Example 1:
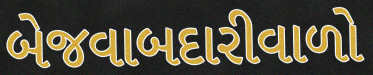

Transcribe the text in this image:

બેજવાબદારીવાળો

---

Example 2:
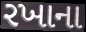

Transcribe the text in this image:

રખાના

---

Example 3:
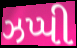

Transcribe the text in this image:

ઝપ્પી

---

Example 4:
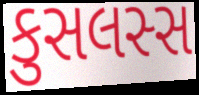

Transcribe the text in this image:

કુસલસ્સ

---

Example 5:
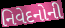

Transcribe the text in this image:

નિવેદનોની